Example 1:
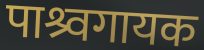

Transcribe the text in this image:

पाश्र्वगायक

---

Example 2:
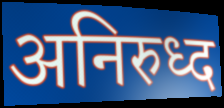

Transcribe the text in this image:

अनिरुध्द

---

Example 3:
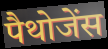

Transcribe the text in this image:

पैथोजेंस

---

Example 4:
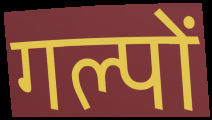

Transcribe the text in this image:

गल्पों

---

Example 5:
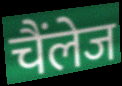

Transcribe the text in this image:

चैंलेज